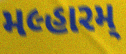
મલ્હારમ્